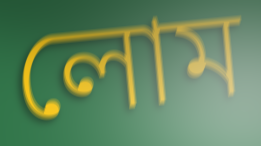
লোম